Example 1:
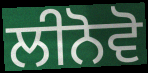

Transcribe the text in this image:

ਲੀਨੋਵੋ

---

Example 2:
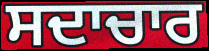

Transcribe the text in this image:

ਸਦਾਚਾਰ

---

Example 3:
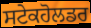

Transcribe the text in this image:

ਸਟੇਕਹੋਲਡਰ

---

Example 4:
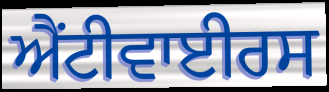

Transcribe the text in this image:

ਐਂਟੀਵਾਈਰਸ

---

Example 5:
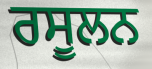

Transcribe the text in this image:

ਰਸੂਲਨ